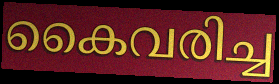
കൈവരിച്ച